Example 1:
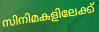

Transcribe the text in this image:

സിനിമകളിലേക്ക്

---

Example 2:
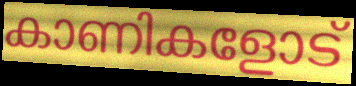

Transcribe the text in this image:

കാണികളോട്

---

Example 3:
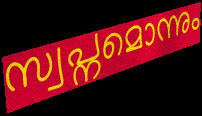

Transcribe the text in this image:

സ്വപ്നമൊന്നും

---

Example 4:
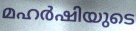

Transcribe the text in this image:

മഹർഷിയുടെ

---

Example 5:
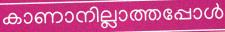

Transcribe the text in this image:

കാണാനില്ലാത്തപ്പോൾ